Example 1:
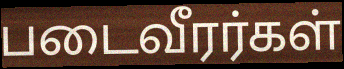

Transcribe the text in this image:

படைவீரர்கள்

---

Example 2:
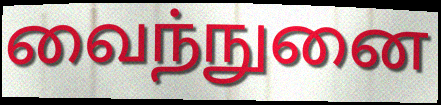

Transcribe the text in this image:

வைந்நுனை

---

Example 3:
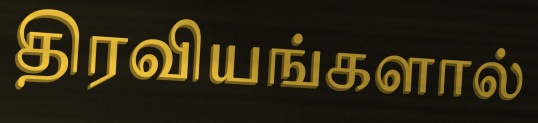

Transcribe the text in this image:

திரவியங்களால்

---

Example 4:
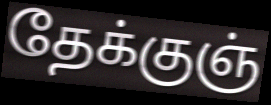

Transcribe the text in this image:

தேக்குஞ்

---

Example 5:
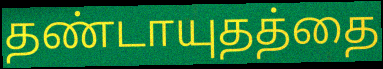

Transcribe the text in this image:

தண்டாயுதத்தை